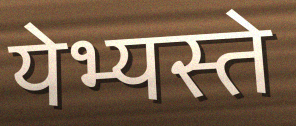
येभ्यस्ते